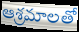
ఆశ్రమాలతో